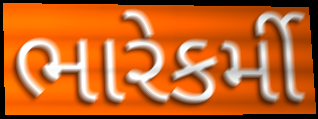
ભારેકર્મી